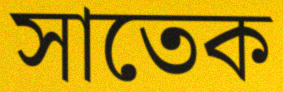
সাতেক